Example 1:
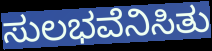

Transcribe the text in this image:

ಸುಲಭವೆನಿಸಿತು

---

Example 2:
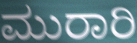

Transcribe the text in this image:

ಮುರಾರಿ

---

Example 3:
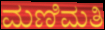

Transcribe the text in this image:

ಮಣಿಮತಿ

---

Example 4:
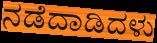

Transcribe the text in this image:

ನಡೆದಾಡಿದಳು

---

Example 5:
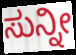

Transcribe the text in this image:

ಸುನ್ನೀ